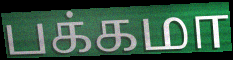
பக்கமா